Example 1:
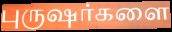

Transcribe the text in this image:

புருஷர்களை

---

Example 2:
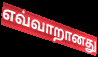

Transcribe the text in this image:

எவ்வாறானது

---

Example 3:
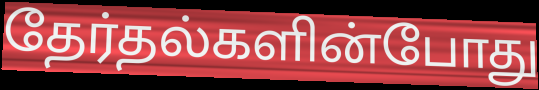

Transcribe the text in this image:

தேர்தல்களின்போது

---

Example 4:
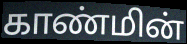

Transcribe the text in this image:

காண்மின்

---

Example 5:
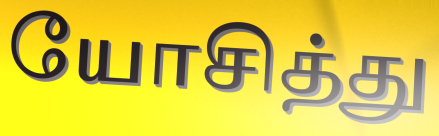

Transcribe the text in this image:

யோசித்து